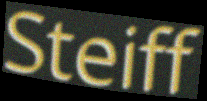
Steiff